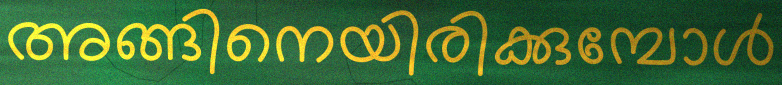
അങ്ങിനെയിരിക്കുമ്പോൾ